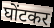
घोंटकर